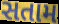
સતામ